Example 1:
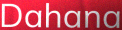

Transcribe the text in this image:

Dahana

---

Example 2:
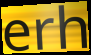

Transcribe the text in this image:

erh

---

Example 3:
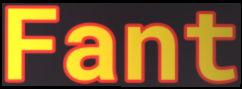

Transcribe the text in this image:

Fant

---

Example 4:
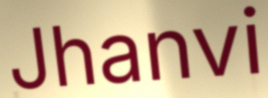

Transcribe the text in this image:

Jhanvi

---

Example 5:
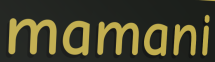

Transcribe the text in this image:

mamani